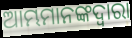
ଆମ୍ଭମାନଙ୍କଦ୍ୱାରା